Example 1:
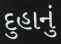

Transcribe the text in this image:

દુહાનું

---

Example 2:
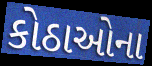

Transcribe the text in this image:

કોઠાઓના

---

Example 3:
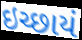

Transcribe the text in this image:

ઇચ્છાયં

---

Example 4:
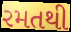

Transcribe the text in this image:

રમતથી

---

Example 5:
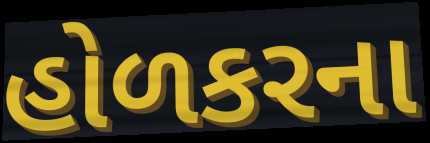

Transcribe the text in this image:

હોળકરના